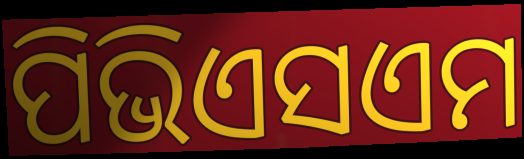
ପିଭିଏସଏମ